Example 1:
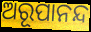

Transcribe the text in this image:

ଅରୂପାନନ୍ଦ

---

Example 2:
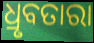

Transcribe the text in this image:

ଧ୍ରୃବତାରା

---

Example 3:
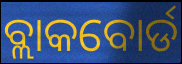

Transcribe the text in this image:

ବ୍ଲାକବୋର୍ଡ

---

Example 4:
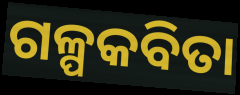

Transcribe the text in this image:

ଗଳ୍ପକବିତା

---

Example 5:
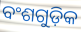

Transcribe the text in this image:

ବଂଶଗୁଡ଼ିକ